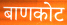
बाणकोट